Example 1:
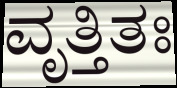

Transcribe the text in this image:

ವೃತ್ತಿತಃ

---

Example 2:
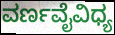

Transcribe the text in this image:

ವರ್ಣವೈವಿಧ್ಯ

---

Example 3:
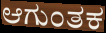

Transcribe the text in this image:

ಆಗುಂತಕ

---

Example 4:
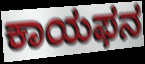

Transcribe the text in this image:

ಕಾಯಫನ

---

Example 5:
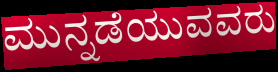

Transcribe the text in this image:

ಮುನ್ನಡೆಯುವವರು